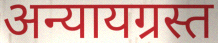
अन्यायग्रस्त